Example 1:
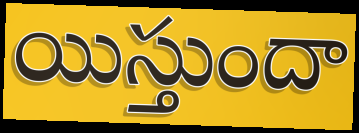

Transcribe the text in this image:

యిస్తుందా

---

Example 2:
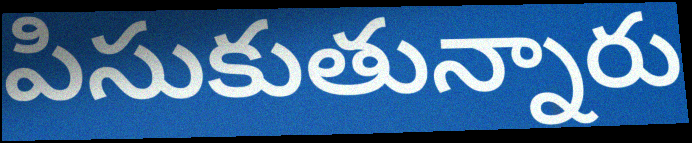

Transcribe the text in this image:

పిసుకుతున్నారు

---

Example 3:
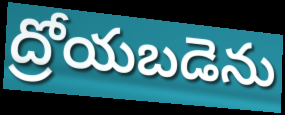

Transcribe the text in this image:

ద్రోయబడెను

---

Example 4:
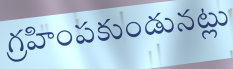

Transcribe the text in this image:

గ్రహింపకుండునట్లు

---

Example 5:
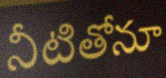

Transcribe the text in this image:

నీటితోనూ